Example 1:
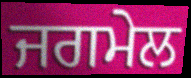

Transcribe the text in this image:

ਜਗਮੇਲ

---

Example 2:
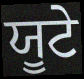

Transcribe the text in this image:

ਯੂਟੇ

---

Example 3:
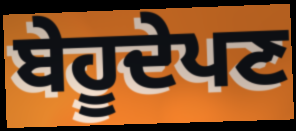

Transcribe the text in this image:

ਬੇਹੂਦੇਪਣ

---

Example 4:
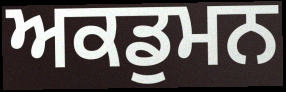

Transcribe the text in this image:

ਅਕਡੁਮਨ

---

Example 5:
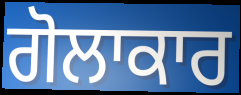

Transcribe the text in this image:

ਗੋਲਾਕਾਰ